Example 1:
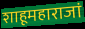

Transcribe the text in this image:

शाहूमहाराजां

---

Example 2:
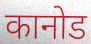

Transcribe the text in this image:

कानोड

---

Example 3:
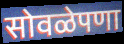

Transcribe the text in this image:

सोवळेपणा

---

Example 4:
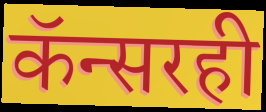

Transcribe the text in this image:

कॅन्सरही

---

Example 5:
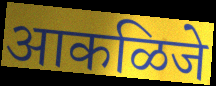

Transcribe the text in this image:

आकळिजे